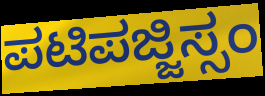
ಪಟಿಪಜ್ಜಿಸ್ಸಂ